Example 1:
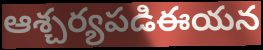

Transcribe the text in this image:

ఆశ్చర్యపడిఈయన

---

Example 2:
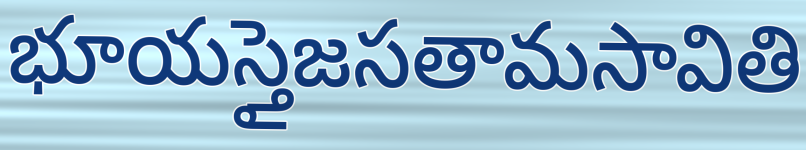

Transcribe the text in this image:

భూయస్తైజసతామసావితి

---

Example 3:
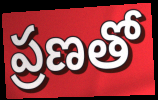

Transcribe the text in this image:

ప్రణతో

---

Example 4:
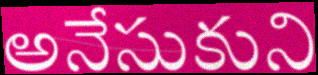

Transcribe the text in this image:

అనేసుకుని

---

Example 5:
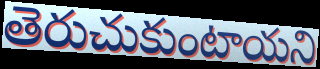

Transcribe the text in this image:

తెరుచుకుంటాయని